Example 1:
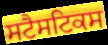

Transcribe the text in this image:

ਸਟੈਸਟਿਕਸ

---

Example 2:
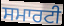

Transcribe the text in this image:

ਸਮਾਰਟੀ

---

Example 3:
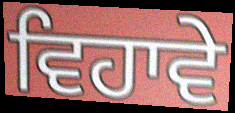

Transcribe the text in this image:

ਵਿਹਾਵੇ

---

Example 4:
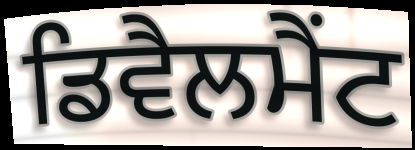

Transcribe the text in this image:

ਡਿਵੈਲਮੈਂਟ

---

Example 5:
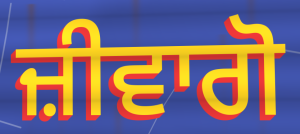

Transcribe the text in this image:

ਜ਼ੀਵਾਗੋ